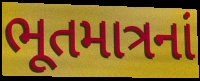
ભૂતમાત્રનાં